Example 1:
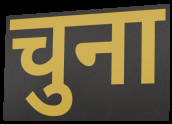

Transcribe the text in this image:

चुना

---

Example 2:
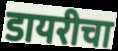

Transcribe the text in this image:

डायरीचा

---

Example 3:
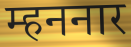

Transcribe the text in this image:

म्हननार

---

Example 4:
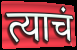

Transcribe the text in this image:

त्याचं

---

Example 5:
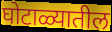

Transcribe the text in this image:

घोटाळ्यातील